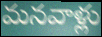
మనవాళ్లు